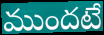
ముందటే